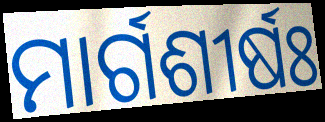
ମାର୍ଗଶୀର୍ଷଃ